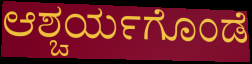
ಆಶ್ಚರ್ಯಗೊಂಡೆ